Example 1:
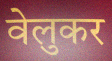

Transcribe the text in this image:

वेलुकर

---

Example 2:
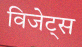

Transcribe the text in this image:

विजेट्स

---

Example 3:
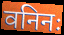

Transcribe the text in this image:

वनिनः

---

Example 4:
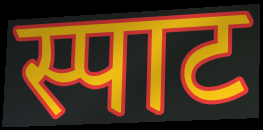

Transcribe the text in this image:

स्पाट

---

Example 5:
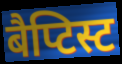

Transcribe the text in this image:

बैप्टिस्ट